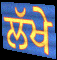
ਲੱਖੇ